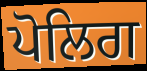
ਪੋਲਿਗ